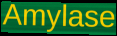
Amylase